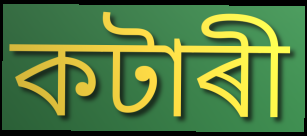
কটাৰী